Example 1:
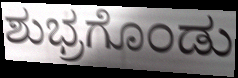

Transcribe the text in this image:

ಶುಭ್ರಗೊಂಡು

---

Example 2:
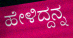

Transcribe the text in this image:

ಹೇಳಿದ್ದನ್ನ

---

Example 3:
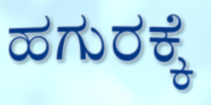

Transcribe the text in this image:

ಹಗುರಕ್ಕೆ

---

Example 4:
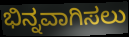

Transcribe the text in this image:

ಭಿನ್ನವಾಗಿಸಲು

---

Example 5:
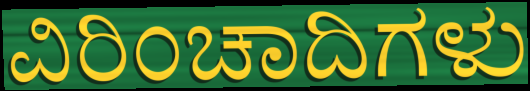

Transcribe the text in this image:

ವಿರಿಂಚಾದಿಗಳು